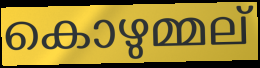
കൊഴുമ്മല്